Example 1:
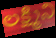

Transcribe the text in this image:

లక్ష్మిని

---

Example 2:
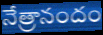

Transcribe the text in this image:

నేత్రానందం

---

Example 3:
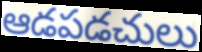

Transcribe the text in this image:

ఆడపడచులు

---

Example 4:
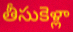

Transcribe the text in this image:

తీసుకెళ్లా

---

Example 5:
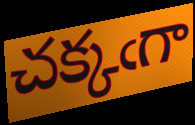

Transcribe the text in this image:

చక్కఁగా